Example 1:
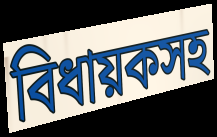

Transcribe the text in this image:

বিধায়কসহ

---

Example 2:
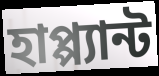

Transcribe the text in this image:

হাপ্প্যান্ট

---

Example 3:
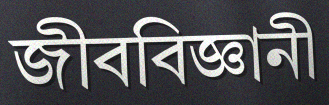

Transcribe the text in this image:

জীববিজ্ঞানী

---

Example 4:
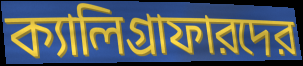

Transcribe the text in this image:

ক্যালিগ্রাফারদের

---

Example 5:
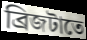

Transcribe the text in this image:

ব্রিজটাতে